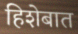
हिशेबात